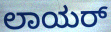
ಲಾಯರ್